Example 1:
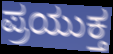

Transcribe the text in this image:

ಪ್ರಯುಕ್ತ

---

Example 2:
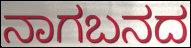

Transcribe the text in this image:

ನಾಗಬನದ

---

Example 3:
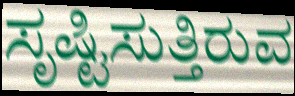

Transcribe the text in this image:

ಸೃಷ್ಟಿಸುತ್ತಿರುವ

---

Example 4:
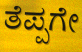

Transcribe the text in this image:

ತೆಪ್ಪಗೇ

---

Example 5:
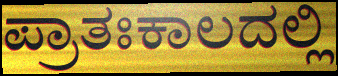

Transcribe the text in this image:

ಪ್ರಾತಃಕಾಲದಲ್ಲಿ